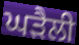
ਘੜੈਲੀ